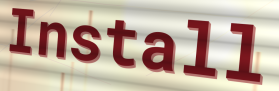
Install